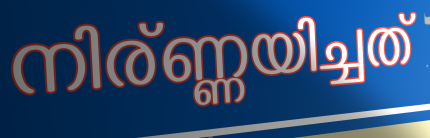
നിര്ണ്ണയിച്ചത്